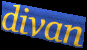
divan